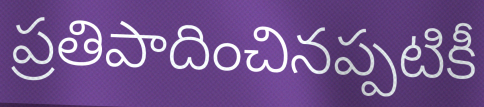
ప్రతిపాదించినప్పటికీ